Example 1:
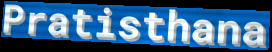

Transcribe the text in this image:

Pratisthana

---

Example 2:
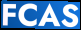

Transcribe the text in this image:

FCAS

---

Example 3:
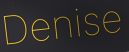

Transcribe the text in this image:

Denise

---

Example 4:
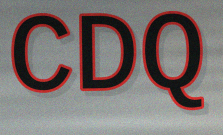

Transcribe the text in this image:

CDQ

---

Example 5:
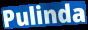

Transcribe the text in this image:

Pulinda